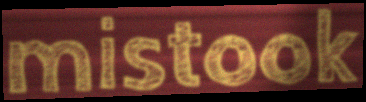
mistook